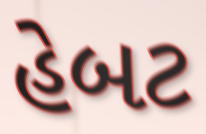
હેબટ